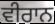
ਵੀਰਾਨ